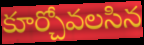
కూర్చోవలసిన